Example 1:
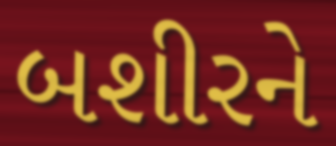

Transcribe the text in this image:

બશીરને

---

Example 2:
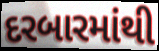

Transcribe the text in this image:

દરબારમાંથી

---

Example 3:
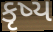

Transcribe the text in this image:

કૃષ્ય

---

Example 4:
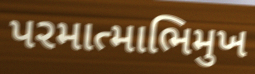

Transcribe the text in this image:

પરમાત્માભિમુખ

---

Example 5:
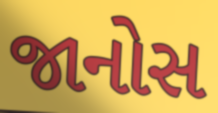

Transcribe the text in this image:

જાનોસ